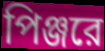
পিঞ্জরে